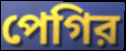
পেগির